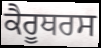
ਕੈਰੂਥਰਸ